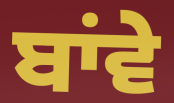
ਬਾਂਵੇ